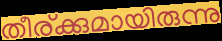
തീര്ക്കുമായിരുന്നു